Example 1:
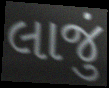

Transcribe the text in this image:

લાજું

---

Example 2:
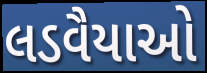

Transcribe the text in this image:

લડવૈયાઓ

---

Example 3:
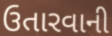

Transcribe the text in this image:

ઉતારવાની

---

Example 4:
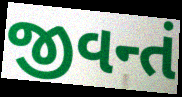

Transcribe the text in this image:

જીવન્તં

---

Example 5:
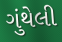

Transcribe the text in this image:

ગુંથેલી